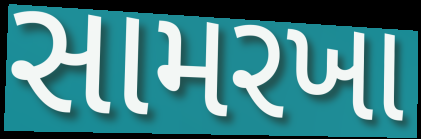
સામરખા